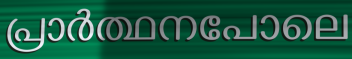
പ്രാർത്ഥനപോലെ